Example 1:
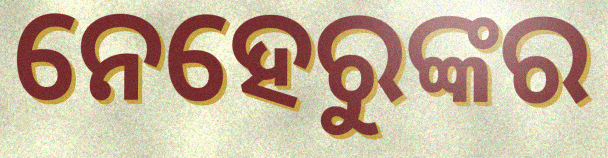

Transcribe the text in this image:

ନେହେରୁଙ୍କର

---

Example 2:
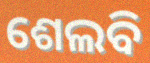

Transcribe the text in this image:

ଶେଲବି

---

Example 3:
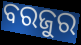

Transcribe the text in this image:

ବରଜୁର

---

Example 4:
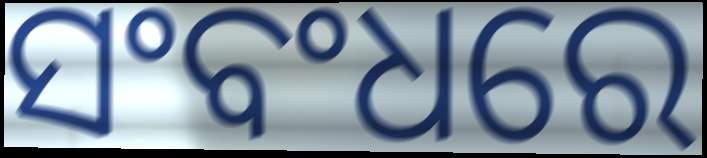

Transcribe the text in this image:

ସଂବଂଧରେ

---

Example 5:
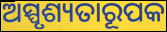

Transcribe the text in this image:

ଅସ୍ପୃଶ୍ୟତାରୂପକ